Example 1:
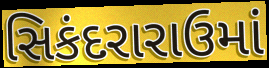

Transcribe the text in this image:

સિકંદરારાઉમાં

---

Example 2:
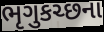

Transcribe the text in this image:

ભૃગુકચ્છના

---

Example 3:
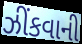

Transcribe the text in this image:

ઝીંકવાની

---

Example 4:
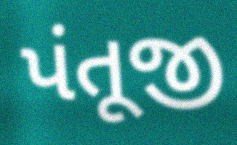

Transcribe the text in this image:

પંતૂજી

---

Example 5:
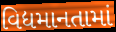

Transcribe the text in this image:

વિદ્યમાનતામાં